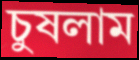
চুষলাম